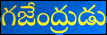
గజేంద్రుడు